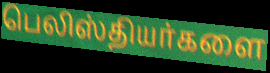
பெலிஸ்தியர்களை